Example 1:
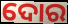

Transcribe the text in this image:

ଦୋର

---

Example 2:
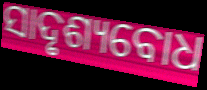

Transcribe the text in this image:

ସାଦୃଶ୍ୟବୋଧ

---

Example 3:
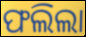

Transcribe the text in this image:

ଫଲିଲା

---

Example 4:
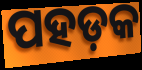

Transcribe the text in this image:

ପହଡ଼କ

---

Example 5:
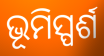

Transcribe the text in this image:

ଭୂମିସ୍ପର୍ଶ